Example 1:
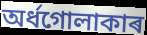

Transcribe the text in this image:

অৰ্ধগোলাকাৰ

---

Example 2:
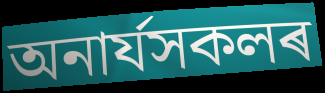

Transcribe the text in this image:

অনাৰ্যসকলৰ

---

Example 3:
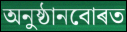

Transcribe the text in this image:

অনুষ্ঠানবোৰত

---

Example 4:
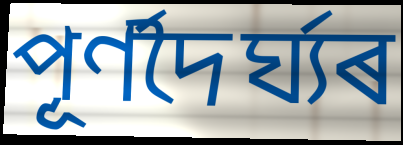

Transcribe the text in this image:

পূৰ্ণদৈৰ্ঘ্যৰ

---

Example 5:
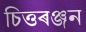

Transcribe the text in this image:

চিত্তৰঞ্জন